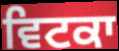
ਵਿਟਕਾ